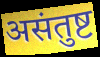
असंतुष्ट